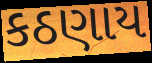
કઠણાય